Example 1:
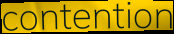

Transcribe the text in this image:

contention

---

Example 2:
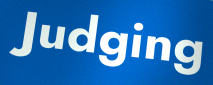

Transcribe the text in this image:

Judging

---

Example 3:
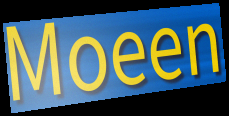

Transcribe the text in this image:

Moeen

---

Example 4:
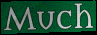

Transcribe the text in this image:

Much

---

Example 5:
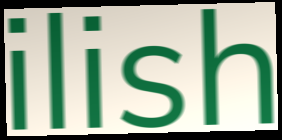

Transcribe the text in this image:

ilish